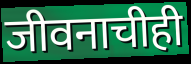
जीवनाचीही